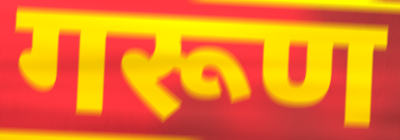
गरूण